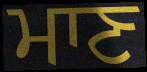
ਮਾਣ